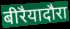
बीरैयादौरा